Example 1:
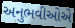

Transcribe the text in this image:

અનુભવીઓએ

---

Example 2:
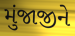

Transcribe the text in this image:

મુંજાજીને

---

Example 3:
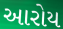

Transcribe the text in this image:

આરોય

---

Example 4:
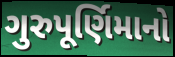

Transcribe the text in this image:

ગુરુપૂર્ણિમાનો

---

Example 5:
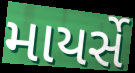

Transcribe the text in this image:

માયર્સે